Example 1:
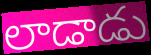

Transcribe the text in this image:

లాడాడు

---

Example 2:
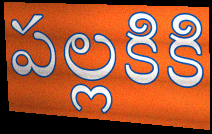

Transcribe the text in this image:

పల్లకికి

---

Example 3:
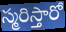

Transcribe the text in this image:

స్మరిస్తారో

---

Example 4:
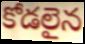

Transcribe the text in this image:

కోడలైన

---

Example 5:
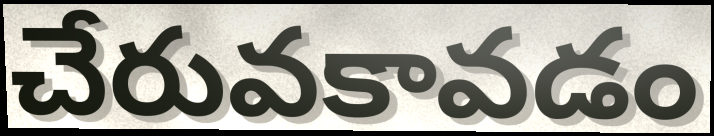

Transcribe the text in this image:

చేరువకావడం